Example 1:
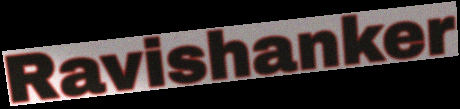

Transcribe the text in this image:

Ravishanker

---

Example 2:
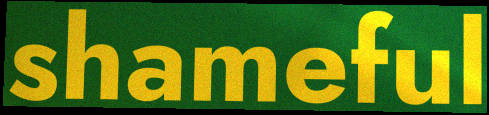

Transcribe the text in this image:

shameful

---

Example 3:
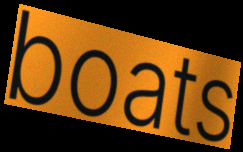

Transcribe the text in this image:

boats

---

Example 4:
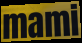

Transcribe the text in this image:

mami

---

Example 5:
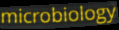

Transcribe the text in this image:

microbiology